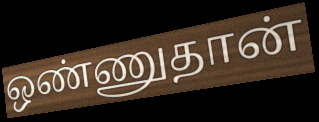
ஒண்ணுதான்